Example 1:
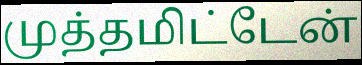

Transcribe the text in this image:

முத்தமிட்டேன்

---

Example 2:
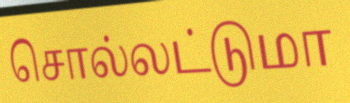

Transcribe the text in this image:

சொல்லட்டுமா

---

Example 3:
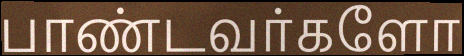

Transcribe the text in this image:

பாண்டவர்களோ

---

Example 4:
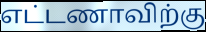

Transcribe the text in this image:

எட்டணாவிற்கு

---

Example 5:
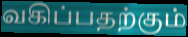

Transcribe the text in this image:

வகிப்பதற்கும்